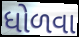
ધોળવા